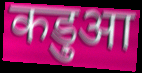
कड़ुआ